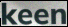
keen